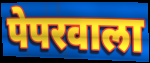
पेपरवाला